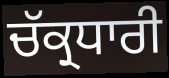
ਚੱਕ੍ਰਧਾਰੀ